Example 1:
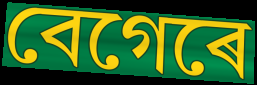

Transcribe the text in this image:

বেগেৰে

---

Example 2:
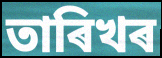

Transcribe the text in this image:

তাৰিখৰ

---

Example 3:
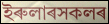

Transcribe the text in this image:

ইৰুলাৰসকলৰ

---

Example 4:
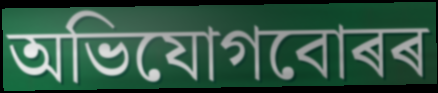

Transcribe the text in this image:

অভিযোগবোৰৰ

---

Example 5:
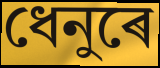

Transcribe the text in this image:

ধেনুৰে